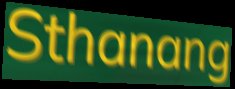
Sthanang